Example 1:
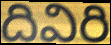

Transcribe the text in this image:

దివిరి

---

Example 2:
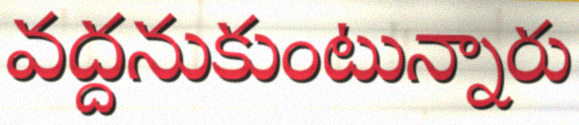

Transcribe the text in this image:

వద్దనుకుంటున్నారు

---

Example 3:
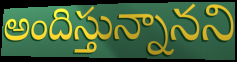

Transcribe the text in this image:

అందిస్తున్నానని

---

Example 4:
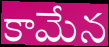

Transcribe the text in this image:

కామేన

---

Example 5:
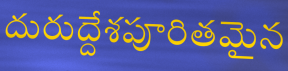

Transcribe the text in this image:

దురుద్దేశపూరితమైన